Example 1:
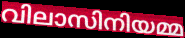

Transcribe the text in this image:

വിലാസിനിയമ്മ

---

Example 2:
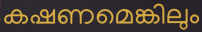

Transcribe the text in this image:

കഷണമെങ്കിലും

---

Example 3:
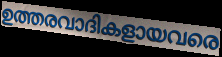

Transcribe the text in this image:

ഉത്തരവാദികളായവരെ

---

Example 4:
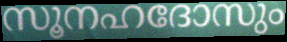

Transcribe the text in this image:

സൂനഹദോസും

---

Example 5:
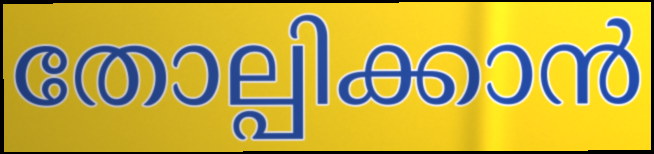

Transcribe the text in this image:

തോല്പിക്കാൻ